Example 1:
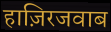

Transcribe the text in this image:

हाज़िरजवाब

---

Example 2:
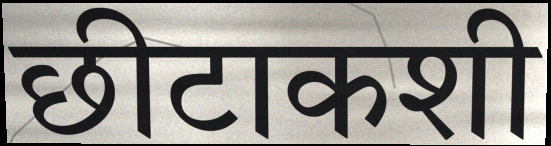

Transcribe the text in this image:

छीटाकशी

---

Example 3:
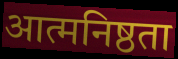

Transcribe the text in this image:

आत्मनिष्ठता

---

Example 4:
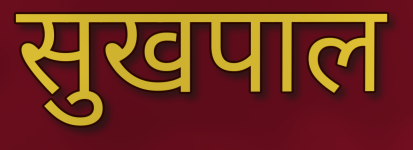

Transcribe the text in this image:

सुखपाल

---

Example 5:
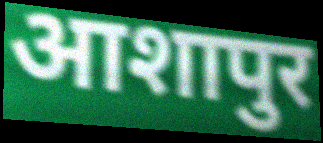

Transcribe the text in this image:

आशापुर